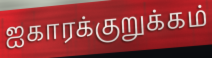
ஐகாரக்குறுக்கம்